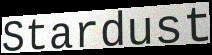
Stardust